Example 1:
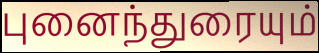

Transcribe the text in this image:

புனைந்துரையும்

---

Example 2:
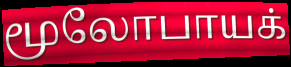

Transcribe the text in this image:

மூலோபாயக்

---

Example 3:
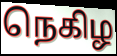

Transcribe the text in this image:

நெகிழ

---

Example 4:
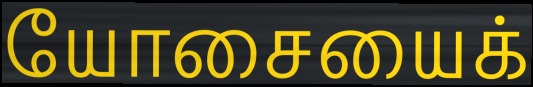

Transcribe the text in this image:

யோசையைக்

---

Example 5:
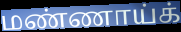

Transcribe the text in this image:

மண்ணாய்க்